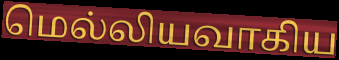
மெல்லியவாகிய